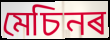
মেচিনৰ